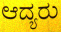
ಆದ್ಯರು